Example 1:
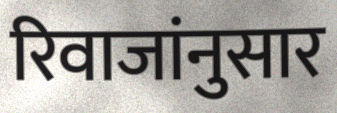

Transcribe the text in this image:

रिवाजांनुसार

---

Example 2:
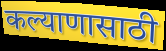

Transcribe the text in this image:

कल्याणासाठी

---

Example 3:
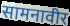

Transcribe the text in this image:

सामनावीर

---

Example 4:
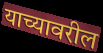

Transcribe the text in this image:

याच्यावरील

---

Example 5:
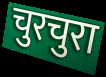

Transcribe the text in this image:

चुरचुरा